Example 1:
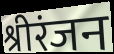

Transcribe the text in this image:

श्रीरंजन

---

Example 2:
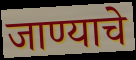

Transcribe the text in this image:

जाण्याचे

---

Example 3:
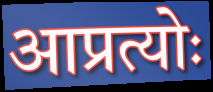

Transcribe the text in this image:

आप्रत्योः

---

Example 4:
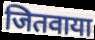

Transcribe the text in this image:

जितवाया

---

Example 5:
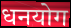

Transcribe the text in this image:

धनयोग